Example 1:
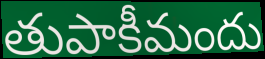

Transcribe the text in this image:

తుపాకీమందు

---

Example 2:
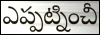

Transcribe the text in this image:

ఎప్పట్నించీ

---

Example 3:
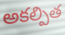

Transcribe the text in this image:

అకల్పిత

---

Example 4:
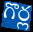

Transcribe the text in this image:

గొర్ల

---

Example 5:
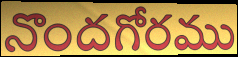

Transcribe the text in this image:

నొందగోరము